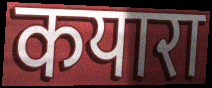
कयारा